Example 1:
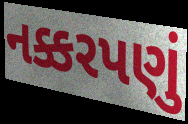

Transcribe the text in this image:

નક્કરપણું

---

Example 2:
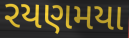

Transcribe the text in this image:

રયણમયા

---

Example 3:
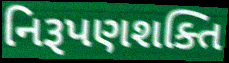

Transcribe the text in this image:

નિરૂપણશક્તિ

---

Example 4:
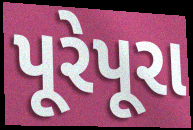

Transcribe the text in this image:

પૂરેપૂરા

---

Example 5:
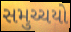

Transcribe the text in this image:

સમુચ્ચયો